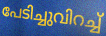
പേടിച്ചുവിറച്ച്